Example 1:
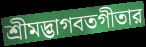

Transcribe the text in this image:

শ্রীমদ্ভাগবতগীতার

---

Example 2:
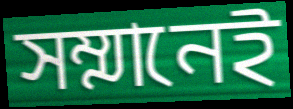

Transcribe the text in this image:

সম্মানেই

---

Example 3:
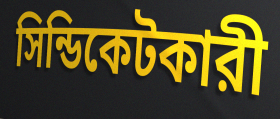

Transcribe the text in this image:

সিন্ডিকেটকারী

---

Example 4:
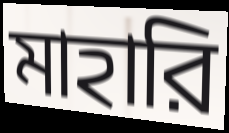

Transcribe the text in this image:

মাহারি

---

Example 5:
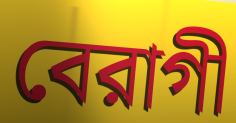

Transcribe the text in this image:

বেরাগী